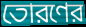
তোরণের